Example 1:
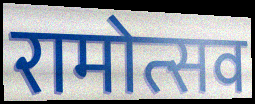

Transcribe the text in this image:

रामोत्सव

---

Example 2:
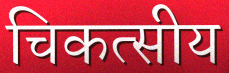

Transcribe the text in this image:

चिकत्सीय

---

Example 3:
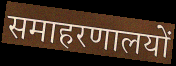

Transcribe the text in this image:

समाहरणालयों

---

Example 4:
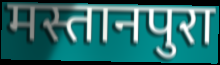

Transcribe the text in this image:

मस्तानपुरा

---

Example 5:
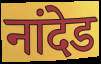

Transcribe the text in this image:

नांदेड